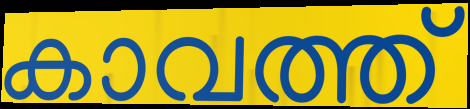
കാവത്ത്